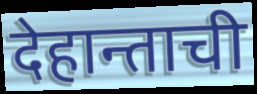
देहान्ताची